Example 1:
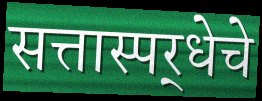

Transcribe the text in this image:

सत्तास्पर्धेचे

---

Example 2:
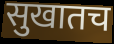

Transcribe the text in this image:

सुखातच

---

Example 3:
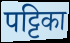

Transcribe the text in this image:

पट्टिका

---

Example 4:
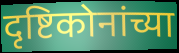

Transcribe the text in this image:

दृष्टिकोनांच्या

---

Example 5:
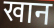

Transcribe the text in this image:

खान